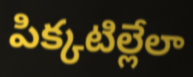
పిక్కటిల్లేలా